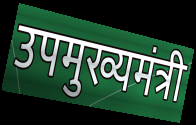
उपमुख्यमंत्री